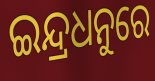
ଇନ୍ଦ୍ରଧନୁରେ